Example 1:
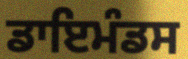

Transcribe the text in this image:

ਡਾਇਮੰਡਸ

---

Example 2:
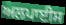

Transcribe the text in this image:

ਅਲਪਾਈਸ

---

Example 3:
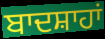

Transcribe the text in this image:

ਬਾਦਸ਼ਾਹਾਂ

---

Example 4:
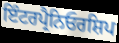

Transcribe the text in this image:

ਇੰਟਰਪ੍ਰੈਨਿਓਰਸ਼ਿਪ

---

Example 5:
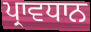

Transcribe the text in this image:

ਪ੍ਰਾਵਧਾਨ